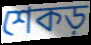
শেকড়